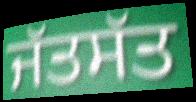
ਜੱਤਸੱਤ